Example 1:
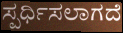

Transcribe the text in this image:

ಸ್ಪರ್ಧಿಸಲಾಗದೆ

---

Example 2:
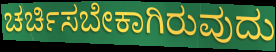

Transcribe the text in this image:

ಚರ್ಚಿಸಬೇಕಾಗಿರುವುದು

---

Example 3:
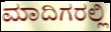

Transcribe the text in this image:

ಮಾದಿಗರಲ್ಲಿ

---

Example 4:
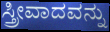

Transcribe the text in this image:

ಸ್ತ್ರೀವಾದವನ್ನು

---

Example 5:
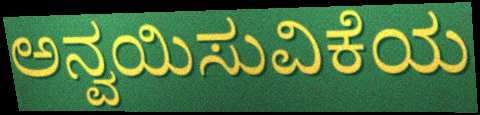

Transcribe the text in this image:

ಅನ್ವಯಿಸುವಿಕೆಯ